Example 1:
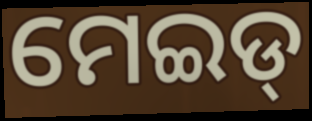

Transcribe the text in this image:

ମେଇଡ୍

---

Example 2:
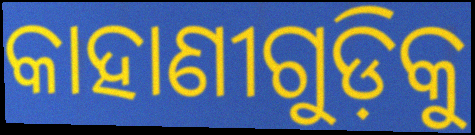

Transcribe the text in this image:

କାହାଣୀଗୁଡ଼ିକୁ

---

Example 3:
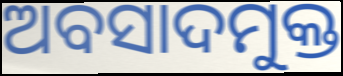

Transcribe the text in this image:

ଅବସାଦମୁକ୍ତ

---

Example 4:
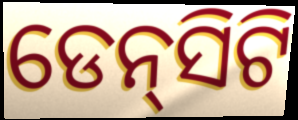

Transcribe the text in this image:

ଡେନ୍‌ସିଟି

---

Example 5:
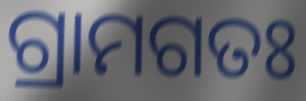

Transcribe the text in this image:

ଗ୍ରାମଗତଃ